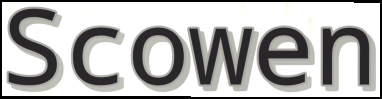
Scowen